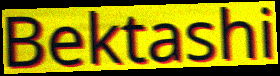
Bektashi